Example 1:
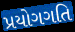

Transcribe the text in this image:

પ્રયોગગતિ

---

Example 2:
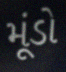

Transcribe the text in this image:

મૂંડો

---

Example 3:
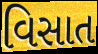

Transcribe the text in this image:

વિસાત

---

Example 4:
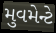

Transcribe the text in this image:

મુવમેન્ટે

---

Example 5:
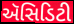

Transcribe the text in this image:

ઍસિડિટી